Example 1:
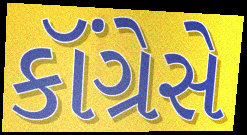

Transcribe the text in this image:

કૉંગ્રેસે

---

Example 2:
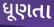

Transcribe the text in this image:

ધૂણતા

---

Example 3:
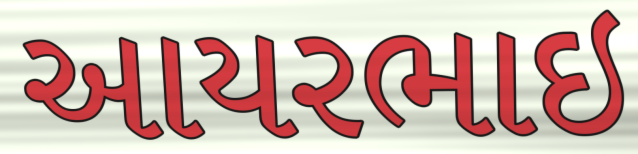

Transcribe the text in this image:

આયરભાઇ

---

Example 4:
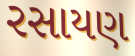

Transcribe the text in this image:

રસાયણ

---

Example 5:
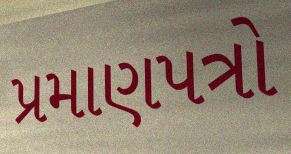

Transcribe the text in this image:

પ્રમાણપત્રો